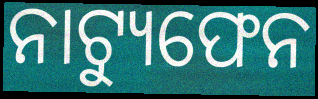
ନାଟ୍ୟୁଫେନ